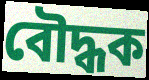
বৌদ্ধক